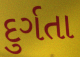
દુર્ગતા